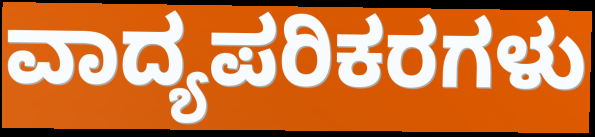
ವಾದ್ಯಪರಿಕರಗಳು